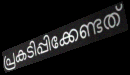
പ്രകടിപ്പിക്കേണ്ടത്